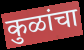
कुळांचा